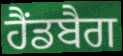
ਹੈਂਡਬੈਗ